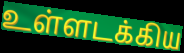
உள்ளடக்கிய